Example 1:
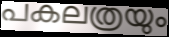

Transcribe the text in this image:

പകലത്രയും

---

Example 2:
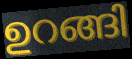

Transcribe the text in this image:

ഉറങ്ങി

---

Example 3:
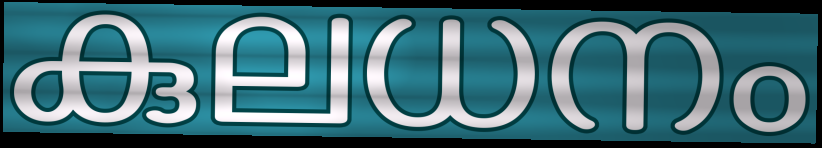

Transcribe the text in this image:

കുലധനം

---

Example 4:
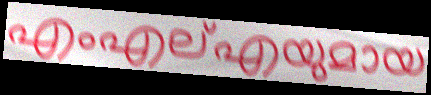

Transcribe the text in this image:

എംഎല്എയുമായ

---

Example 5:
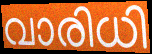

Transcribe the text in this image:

വാരിധി